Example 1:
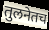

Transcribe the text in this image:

तुलनेतच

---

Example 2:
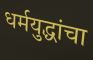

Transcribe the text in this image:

धर्मयुद्धांचा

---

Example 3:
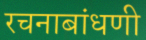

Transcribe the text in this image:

रचनाबांधणी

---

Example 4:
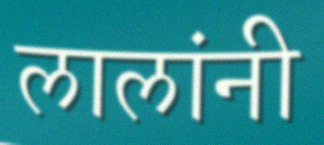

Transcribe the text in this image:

लालांनी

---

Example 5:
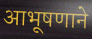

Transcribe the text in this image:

आभूषणाने